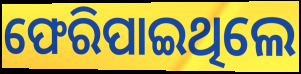
ଫେରିପାଇଥିଲେ